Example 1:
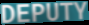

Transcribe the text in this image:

DEPUTY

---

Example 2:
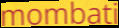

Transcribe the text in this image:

mombati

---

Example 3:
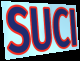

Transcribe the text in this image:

SUCI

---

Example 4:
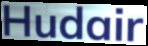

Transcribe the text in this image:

Hudair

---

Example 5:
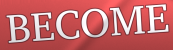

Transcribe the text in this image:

BECOME